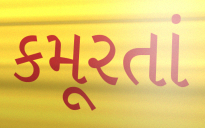
કમૂરતાં